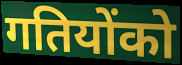
गतियोंको